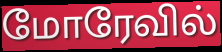
மோரேவில்